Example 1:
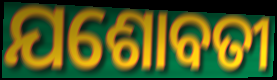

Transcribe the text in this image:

ଯଶୋବତୀ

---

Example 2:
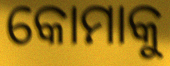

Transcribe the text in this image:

କୋମାକୁ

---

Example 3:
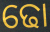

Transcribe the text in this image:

ଢୋ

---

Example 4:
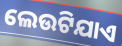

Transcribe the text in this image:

ଲେଉଟିଯାଏ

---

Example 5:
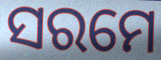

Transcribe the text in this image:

ସରମେ